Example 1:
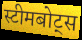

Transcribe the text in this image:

स्टीमबोट्स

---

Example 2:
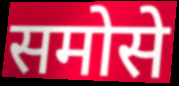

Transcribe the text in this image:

समोसे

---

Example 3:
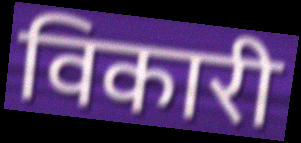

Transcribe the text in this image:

विकारी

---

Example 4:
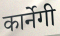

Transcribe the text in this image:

कार्नेगी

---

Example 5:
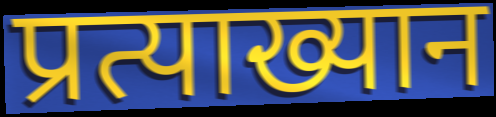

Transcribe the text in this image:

प्रत्याख्यान